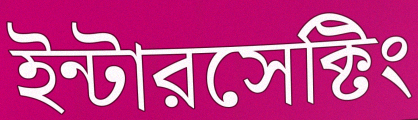
ইন্টারসেক্টিং